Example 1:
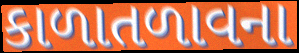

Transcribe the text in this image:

કાળાતળાવના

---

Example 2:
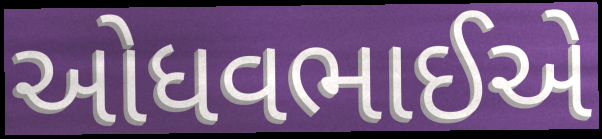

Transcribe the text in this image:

ઓધવભાઈએ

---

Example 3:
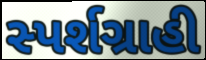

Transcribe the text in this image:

સ્પર્શગ્રાહી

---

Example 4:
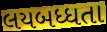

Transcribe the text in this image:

લયબધ્ધતા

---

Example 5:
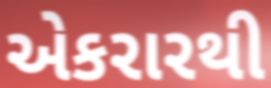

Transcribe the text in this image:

એકરારથી